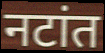
नटांत